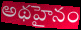
అథహైనం